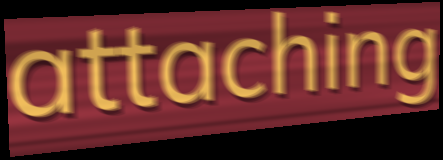
attaching